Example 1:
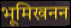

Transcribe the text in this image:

भूमिखनन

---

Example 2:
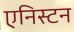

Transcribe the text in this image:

एनिस्टन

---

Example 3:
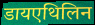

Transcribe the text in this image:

डायएथिलिन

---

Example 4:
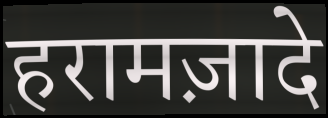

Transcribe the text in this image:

हरामज़ादे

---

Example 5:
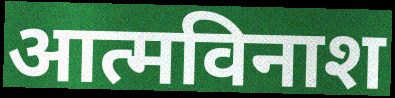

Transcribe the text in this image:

आत्मविनाश